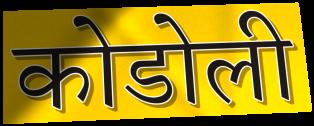
कोडोली